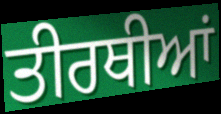
ਤੀਰਥੀਆਂ